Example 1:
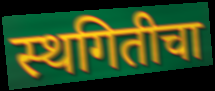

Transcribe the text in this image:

स्थगितीचा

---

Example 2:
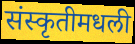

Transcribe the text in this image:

संस्कृतीमधली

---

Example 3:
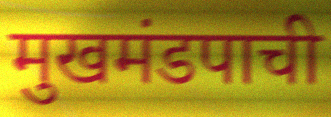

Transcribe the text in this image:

मुखमंडपाची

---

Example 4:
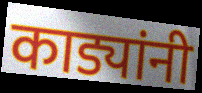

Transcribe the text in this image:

काड्यांनी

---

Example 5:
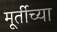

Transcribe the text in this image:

मूर्तीच्या